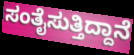
ಸಂತೈಸುತ್ತಿದ್ದಾನೆ